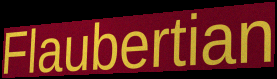
Flaubertian